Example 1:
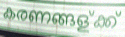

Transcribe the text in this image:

കരണങ്ങള്ക്ക്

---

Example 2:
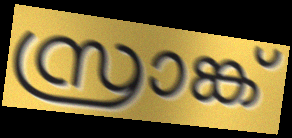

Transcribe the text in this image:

സ്രാങ്ക്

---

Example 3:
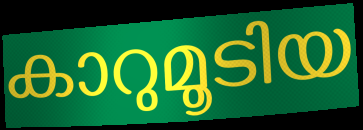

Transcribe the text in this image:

കാറുമൂടിയ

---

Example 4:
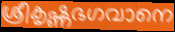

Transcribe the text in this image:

ശ്രീകൃഷ്ണഭഗവാനെ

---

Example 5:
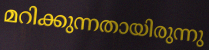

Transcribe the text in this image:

മറിക്കുന്നതായിരുന്നു